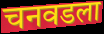
चनवडला